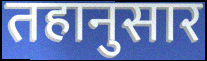
तहानुसार